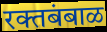
रक्‍तबंबाळ